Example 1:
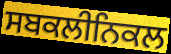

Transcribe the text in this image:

ਸਬਕਲੀਨਿਕਲ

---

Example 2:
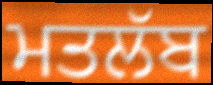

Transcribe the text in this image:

ਮਤਲੱਬ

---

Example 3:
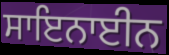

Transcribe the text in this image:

ਸਾਇਨਾਈਨ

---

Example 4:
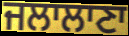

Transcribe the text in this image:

ਜਲਾਲਾਣਾ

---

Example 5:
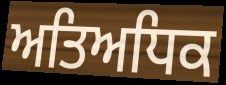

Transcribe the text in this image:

ਅਤਿਅਧਿਕ